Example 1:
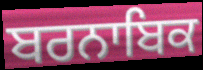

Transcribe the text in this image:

ਬਰਨਾਬਿਕ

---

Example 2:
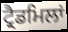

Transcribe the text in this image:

ਟ੍ਰੈਡਮਿਲਾਂ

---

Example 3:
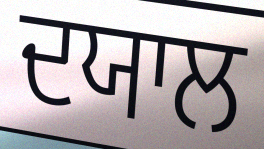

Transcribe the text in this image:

ਦਯਾਲ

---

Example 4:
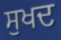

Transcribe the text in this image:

ਸੁਖਦ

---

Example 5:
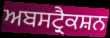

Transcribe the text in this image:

ਅਬਸਟ੍ਰੈਕਸ਼ਨ